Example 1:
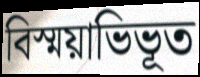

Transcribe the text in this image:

বিস্ময়াভিভূত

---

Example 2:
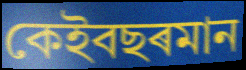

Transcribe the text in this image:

কেইবছৰমান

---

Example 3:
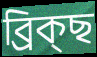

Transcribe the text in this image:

ব্ৰিক্‌ছ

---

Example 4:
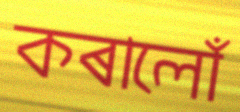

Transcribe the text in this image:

কৰালোঁ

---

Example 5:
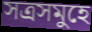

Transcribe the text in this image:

সত্ৰসমুহে